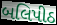
બલિપીઠ